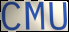
CMU